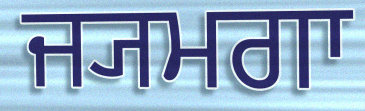
ਜ੍ਯਮਗਾ